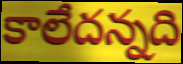
కాలేదన్నది